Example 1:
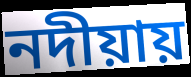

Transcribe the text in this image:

নদীয়ায়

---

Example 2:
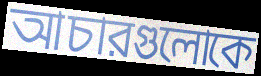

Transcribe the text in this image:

আচারগুলোকে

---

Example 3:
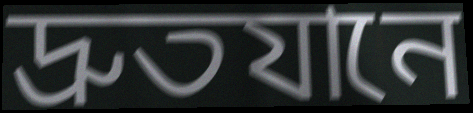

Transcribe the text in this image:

দ্রুতযানে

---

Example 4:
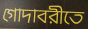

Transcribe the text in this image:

গোদাবরীতে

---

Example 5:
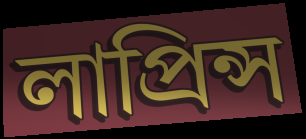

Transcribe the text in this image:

লাপ্রিন্স